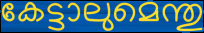
കേട്ടാലുമെന്തു